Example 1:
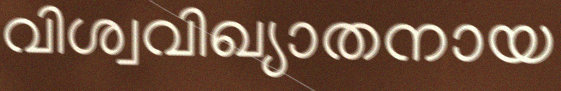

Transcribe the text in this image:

വിശ്വവിഖ്യാതനായ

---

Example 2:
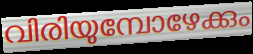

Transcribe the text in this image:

വിരിയുമ്പോഴേക്കും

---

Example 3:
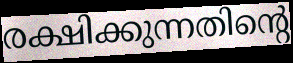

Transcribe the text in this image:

രക്ഷിക്കുന്നതിന്റെ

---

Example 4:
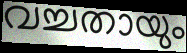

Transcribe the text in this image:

വച്ചതായും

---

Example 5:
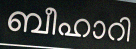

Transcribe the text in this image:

ബീഹാറി